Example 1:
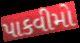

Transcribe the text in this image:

પાકવીમો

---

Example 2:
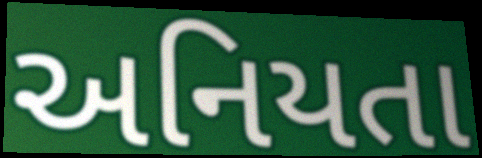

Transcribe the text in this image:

અનિયતા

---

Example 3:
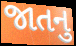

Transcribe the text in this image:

જાતનુ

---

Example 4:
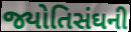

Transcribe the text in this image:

જ્યોતિસંઘની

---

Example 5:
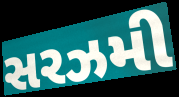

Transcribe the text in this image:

સરઝમી